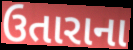
ઉતારાના